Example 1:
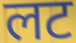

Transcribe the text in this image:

लट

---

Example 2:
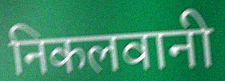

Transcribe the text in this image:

निकलवानी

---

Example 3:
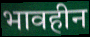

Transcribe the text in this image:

भावहीन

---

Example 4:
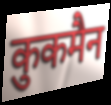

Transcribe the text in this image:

कुकमैन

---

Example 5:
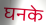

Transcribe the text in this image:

घनके